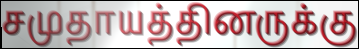
சமுதாயத்தினருக்கு